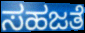
ಸಹಜತೆ